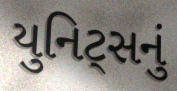
યુનિટ્સનું